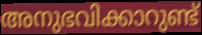
അനുഭവിക്കാറുണ്ട്